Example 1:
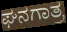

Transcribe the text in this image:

ಘನಗಾತ್ರ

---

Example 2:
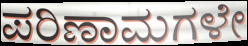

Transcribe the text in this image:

ಪರಿಣಾಮಗಳೇ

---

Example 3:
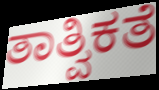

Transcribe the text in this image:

ತಾತ್ವಿಕತೆ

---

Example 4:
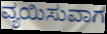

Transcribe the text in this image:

ವ್ಯಯಿಸುವಾಗ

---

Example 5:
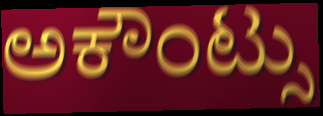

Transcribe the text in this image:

ಅಕೌಂಟ್ಸು